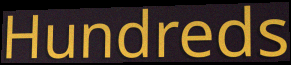
Hundreds